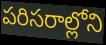
పరిసరాల్లోని